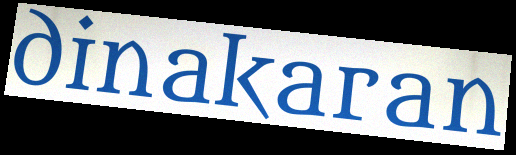
dinakaran